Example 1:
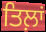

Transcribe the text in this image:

ਤਿਲ਼ਾਂ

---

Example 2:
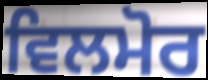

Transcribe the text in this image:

ਵਿਲਮੋਰ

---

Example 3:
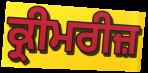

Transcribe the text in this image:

ਕ੍ਰੀਮਰੀਜ਼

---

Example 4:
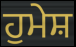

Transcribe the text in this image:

ਹੁਮੇਸ਼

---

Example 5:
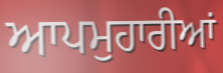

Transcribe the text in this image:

ਆਪਮੁਹਾਰੀਆਂ